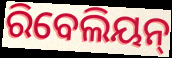
ରିବେଲିୟନ୍